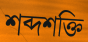
শব্দশক্তি